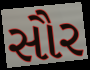
સૌર